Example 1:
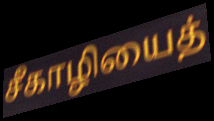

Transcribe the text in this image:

சீகாழியைத்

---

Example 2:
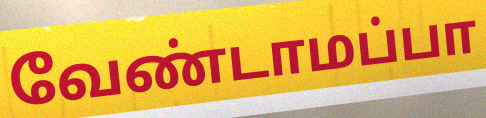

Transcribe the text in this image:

வேண்டாமப்பா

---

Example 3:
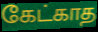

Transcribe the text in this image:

கேட்காத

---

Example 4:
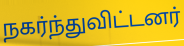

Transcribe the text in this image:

நகர்ந்துவிட்டனர்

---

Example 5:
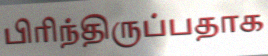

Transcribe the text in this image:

பிரிந்திருப்பதாக